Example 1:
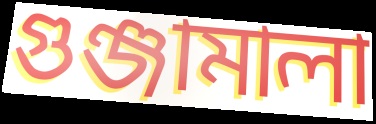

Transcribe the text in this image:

গুঞ্জামালা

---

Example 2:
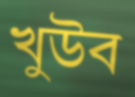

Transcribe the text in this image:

খুউব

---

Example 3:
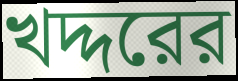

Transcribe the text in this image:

খদ্দরের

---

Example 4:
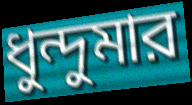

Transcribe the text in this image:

ধুন্দুমার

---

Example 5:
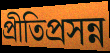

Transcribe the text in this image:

প্রীতিপ্রসন্ন